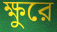
ক্ষুরে